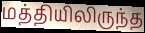
மத்தியிலிருந்த